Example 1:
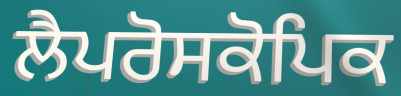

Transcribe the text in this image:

ਲੈਪਰੋਸਕੋਪਿਕ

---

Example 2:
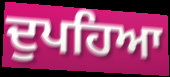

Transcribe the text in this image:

ਦੁਪਹਿਆ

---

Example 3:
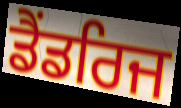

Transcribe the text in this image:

ਡੈਂਡਰਿਜ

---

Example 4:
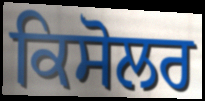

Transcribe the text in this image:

ਕਿਸੋਲਰ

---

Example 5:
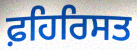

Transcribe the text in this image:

ਫ਼ਹਿਰਿਸਤ